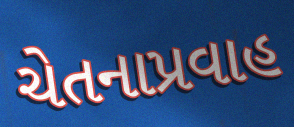
ચેતનાપ્રવાહ